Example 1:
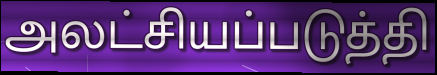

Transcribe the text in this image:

அலட்சியப்படுத்தி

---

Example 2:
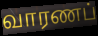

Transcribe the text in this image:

வாரணப்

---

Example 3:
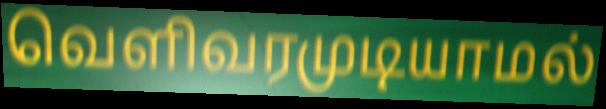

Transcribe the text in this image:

வெளிவரமுடியாமல்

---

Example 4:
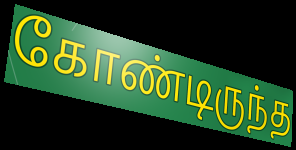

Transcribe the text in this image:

கோண்டிருந்த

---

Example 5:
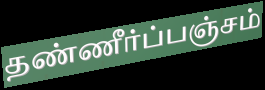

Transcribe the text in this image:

தண்ணீர்ப்பஞ்சம்